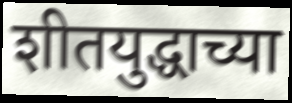
शीतयुद्धाच्या